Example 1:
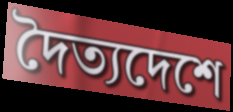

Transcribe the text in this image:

দৈত্যদেশে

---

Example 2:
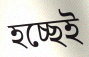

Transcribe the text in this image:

হচ্ছেই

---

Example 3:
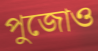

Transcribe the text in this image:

পুজোও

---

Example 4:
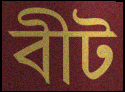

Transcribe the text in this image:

বীট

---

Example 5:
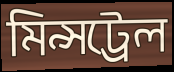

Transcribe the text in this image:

মিন্সট্রেল